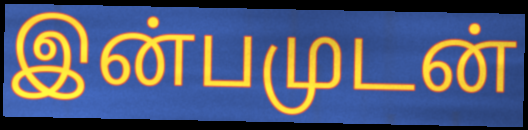
இன்பமுடன்